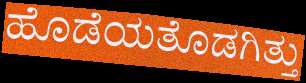
ಹೊಡೆಯತೊಡಗಿತ್ತು